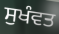
ਸੁਖੰਵਤ